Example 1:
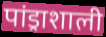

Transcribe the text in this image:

पांड्राशाली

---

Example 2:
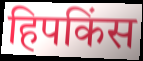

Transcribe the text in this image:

हिपकिंस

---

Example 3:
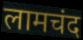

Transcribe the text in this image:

लामचंद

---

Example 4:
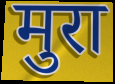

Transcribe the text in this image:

मुरा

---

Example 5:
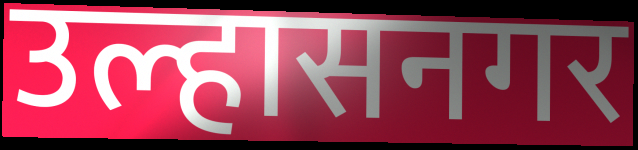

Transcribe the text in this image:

उल्हासनगर